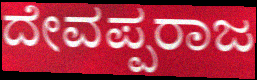
ದೇವಪ್ಪರಾಜ